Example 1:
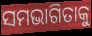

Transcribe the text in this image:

ସମଭାଗିତାକୁ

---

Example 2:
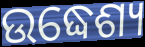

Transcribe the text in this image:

ଉଦ୍ଧେଶ୍ୟ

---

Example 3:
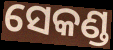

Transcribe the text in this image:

ସେକଣ୍ଡ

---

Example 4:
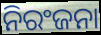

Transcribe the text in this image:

ନିରଂଜନା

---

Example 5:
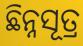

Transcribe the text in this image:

ଛିନ୍ନସୂତ୍ର